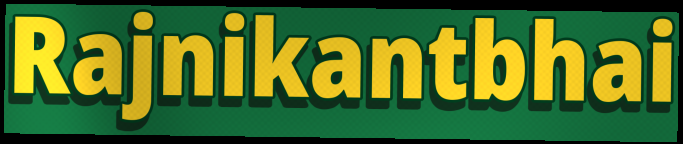
Rajnikantbhai